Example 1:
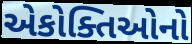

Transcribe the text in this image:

એકોક્તિઓનો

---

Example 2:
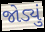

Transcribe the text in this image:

જોડ્યું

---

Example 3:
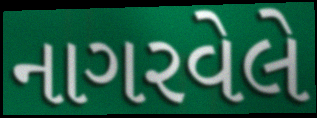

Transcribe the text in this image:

નાગરવેલે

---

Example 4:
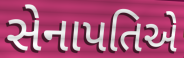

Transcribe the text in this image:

સેનાપતિએ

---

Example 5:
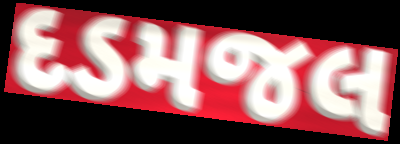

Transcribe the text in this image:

દડમજલ